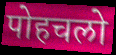
पोहचलो